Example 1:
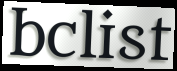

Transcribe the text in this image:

bclist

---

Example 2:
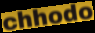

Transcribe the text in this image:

chhodo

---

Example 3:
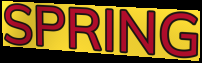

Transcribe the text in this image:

SPRING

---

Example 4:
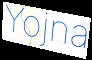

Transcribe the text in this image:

Yojna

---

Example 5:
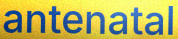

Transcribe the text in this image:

antenatal